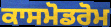
ਕਾਸਮੋਡਰੋਮ